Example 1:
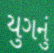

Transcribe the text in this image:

યુગનું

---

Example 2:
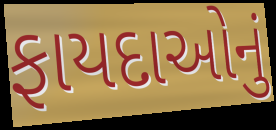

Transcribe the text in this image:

ફાયદાઓનું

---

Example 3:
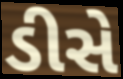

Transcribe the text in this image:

ડીસે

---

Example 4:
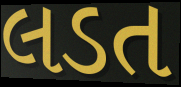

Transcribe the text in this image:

લડત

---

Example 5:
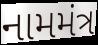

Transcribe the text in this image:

નામમંત્ર